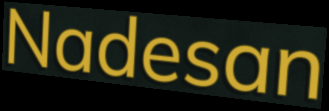
Nadesan